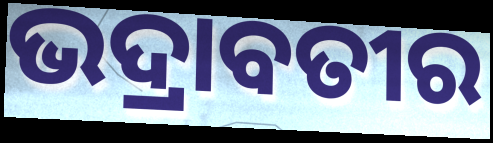
ଭଦ୍ରାବତୀର